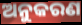
ଅନୁକରଣ